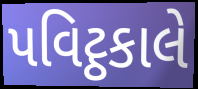
પવિટ્ઠકાલે